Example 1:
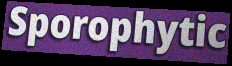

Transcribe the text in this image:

Sporophytic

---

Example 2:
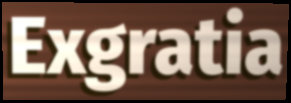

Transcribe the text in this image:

Exgratia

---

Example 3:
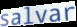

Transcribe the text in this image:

salvar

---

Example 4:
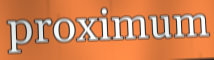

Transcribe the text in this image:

proximum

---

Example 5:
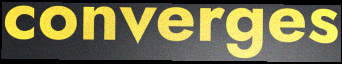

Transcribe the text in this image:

converges